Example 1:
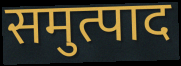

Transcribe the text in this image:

समुत्पाद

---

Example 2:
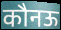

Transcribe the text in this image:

कौनऊ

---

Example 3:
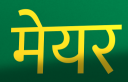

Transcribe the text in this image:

मेयर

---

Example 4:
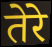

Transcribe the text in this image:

तेरे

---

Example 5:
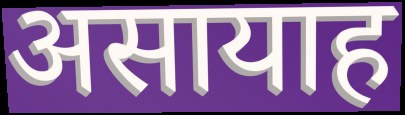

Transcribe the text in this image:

असायाह